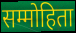
सम्मोहिता